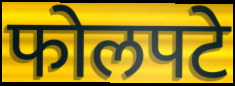
फोलपटे